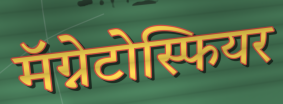
मॅग्नेटोस्फियर